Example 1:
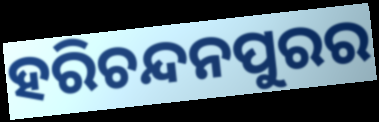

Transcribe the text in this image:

ହରିଚନ୍ଦନପୁରର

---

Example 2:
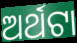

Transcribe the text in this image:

ଅର୍ଥଟା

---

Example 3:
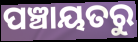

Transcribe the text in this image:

ପଞ୍ଚାୟତରୁ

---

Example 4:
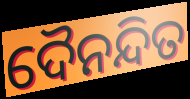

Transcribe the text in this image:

ଦୈନନ୍ଦିତ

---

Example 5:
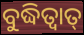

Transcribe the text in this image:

ବୁଦ୍ଧିତ୍ୱାତ୍